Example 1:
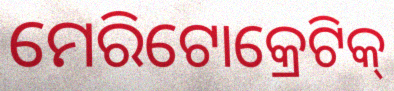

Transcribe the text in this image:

ମେରିଟୋକ୍ରେଟିକ୍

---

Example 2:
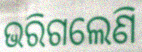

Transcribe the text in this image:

ଭରିଗଲେଣି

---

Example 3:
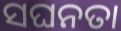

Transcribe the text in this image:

ସଘନତା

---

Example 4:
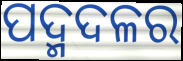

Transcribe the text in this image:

ପଦ୍ମଦଳର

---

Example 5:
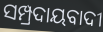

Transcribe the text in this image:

ସମ୍ପ୍ରଦାୟବାଦୀ